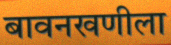
बावनखणीला